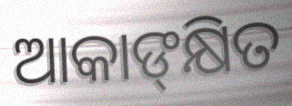
ଆକାଙ୍‍କ୍ଷିତ